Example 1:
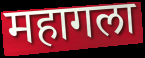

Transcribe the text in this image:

महागला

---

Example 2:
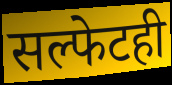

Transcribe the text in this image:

सल्फेटही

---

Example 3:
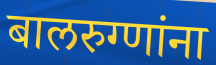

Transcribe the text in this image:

बालरुग्णांना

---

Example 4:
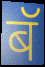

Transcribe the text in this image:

बॅ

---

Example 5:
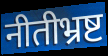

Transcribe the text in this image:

नीतीभ्रष्ट